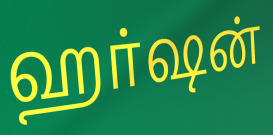
ஹர்ஷன்